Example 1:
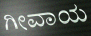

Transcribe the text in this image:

ಗೀವಾಯ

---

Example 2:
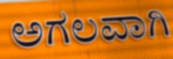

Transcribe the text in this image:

ಅಗಲವಾಗಿ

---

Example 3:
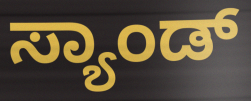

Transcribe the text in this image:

ಸ್ಯಾಂಡ್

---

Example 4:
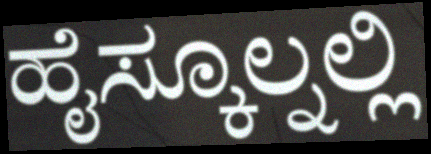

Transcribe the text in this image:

ಹೈಸ್ಕೂಲ್ನಲ್ಲಿ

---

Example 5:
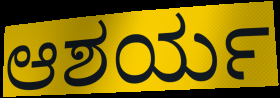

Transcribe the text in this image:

ಆಶರ್ಯ